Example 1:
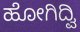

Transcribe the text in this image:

ಹೋಗಿದ್ವಿ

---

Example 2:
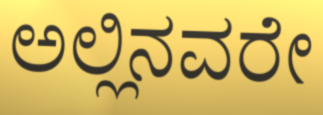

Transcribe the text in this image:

ಅಲ್ಲಿನವರೇ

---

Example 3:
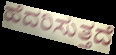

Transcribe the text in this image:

ಹೆದರಿಸುತ್ತದೆ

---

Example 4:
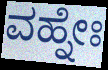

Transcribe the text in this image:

ವಹ್ನೇಃ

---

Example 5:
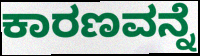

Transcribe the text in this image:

ಕಾರಣವನ್ನೆ